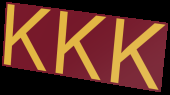
KKK